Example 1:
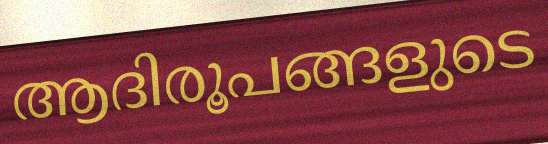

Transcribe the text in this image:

ആദിരൂപങ്ങളുടെ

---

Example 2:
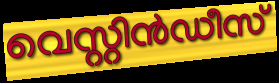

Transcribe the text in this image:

വെസ്റ്റിൻഡീസ്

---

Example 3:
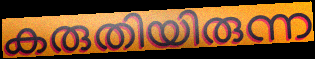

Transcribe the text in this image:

കരുതിയിരുന്ന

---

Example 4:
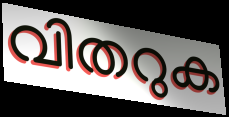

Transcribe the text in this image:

വിതറുക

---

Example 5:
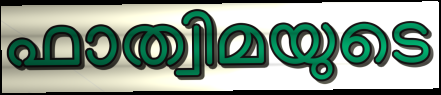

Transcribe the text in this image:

ഫാത്വിമയുടെ